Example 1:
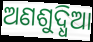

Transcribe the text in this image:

ଅଣଶୁଦ୍ଧିଆ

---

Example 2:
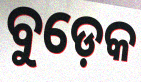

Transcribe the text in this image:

ବୁଡ଼େକ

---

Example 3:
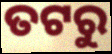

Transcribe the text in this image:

ତଟରୁ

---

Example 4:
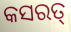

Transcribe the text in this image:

କସରତ୍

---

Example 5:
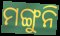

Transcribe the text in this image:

ମଙ୍ଗୁନି